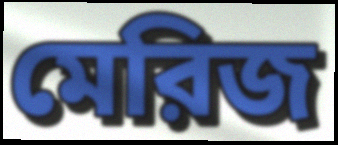
মেরিজ